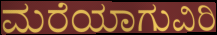
ಮರೆಯಾಗುವಿರಿ